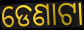
ଡେଣାଟା